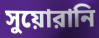
সুয়োরানি